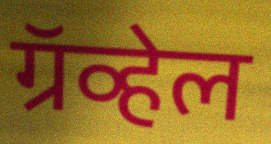
ग्रॅव्हेल